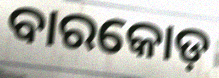
ବାରକୋଡ଼